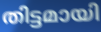
തിട്ടമായി